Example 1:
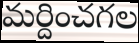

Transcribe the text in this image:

మర్దించగల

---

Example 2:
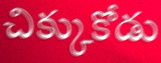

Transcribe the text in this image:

చిక్కుకోడు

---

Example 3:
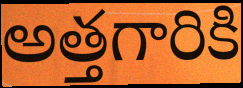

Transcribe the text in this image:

అత్తగారికి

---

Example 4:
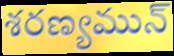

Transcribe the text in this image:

శరణ్యమున్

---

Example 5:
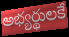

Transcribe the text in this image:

అభ్యర్థులకే